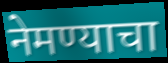
नेमण्याचा